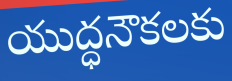
యుద్ధనౌకలకు